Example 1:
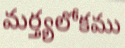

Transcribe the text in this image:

మర్త్యలోకము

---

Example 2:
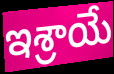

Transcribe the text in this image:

ఇశ్రాయే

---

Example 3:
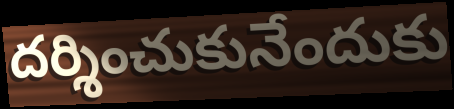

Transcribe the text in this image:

దర్శించుకునేందుకు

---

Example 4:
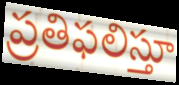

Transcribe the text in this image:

ప్రతిఫలిస్తూ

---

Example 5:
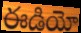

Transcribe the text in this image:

ఈడియో